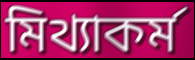
মিথ্যাকর্ম